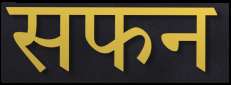
सफन